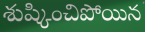
శుష్కించిపోయిన